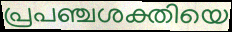
പ്രപഞ്ചശക്തിയെ